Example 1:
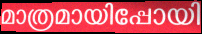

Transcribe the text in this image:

മാത്രമായിപ്പോയി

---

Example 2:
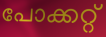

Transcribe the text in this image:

പോക്കറ്റ്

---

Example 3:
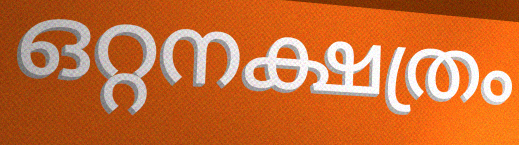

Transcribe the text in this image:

ഒറ്റനക്ഷത്രം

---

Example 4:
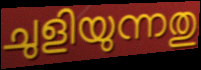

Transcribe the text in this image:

ചുളിയുന്നതു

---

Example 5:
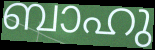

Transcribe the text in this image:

ബാഹു